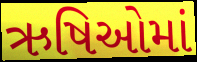
ઋષિઓમાં